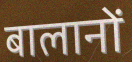
बालानों